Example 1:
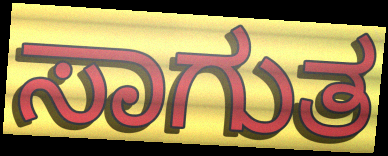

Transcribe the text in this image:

ಸಾಗುತ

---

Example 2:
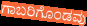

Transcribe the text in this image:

ಗಾಬರಿಗೊಂಡವು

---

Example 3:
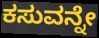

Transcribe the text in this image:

ಕಸುವನ್ನೇ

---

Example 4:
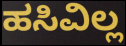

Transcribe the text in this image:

ಹಸಿವಿಲ್ಲ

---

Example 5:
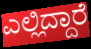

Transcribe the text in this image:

ಎಲ್ಲಿದ್ದಾರೆ